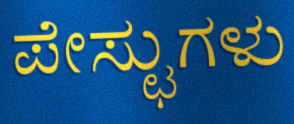
ಪೇಸ್ಟುಗಳು